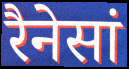
रैनेसां